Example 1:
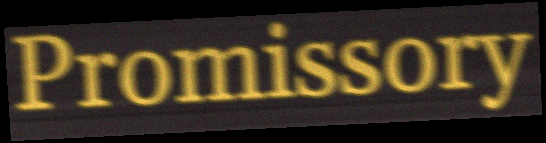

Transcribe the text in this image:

Promissory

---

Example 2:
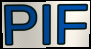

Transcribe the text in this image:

PIF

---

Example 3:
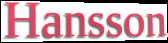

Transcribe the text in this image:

Hansson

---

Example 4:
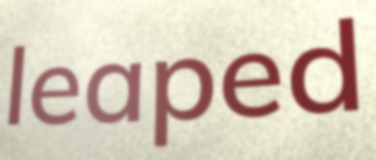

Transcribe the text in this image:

leaped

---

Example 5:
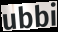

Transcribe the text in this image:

ubbi